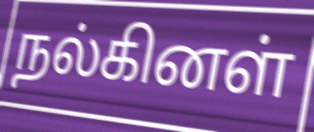
நல்கினள்